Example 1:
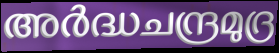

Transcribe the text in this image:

അർദ്ധചന്ദ്രമുദ്ര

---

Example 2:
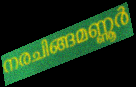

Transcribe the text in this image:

നരചിങ്ങമണ്ണൂർ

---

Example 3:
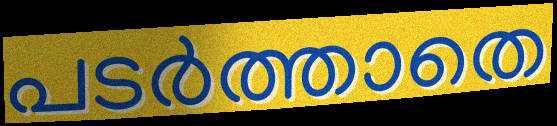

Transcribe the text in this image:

പടർത്താതെ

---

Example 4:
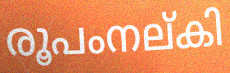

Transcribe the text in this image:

രൂപംനല്കി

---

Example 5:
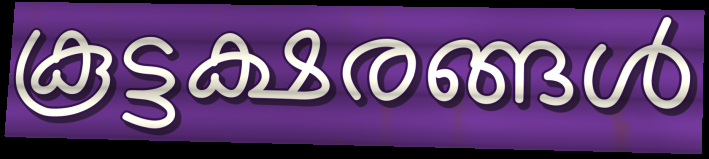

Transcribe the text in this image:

കൂട്ടക്ഷരങ്ങൾ